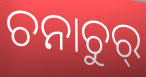
ଚନାଚୁର୍